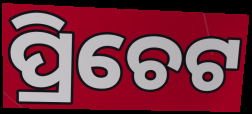
ପ୍ରିଚେଟ